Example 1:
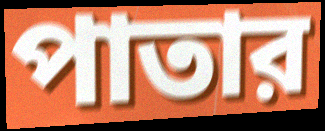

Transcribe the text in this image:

পাতার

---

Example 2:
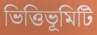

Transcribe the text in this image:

ভিত্তিভূমিটি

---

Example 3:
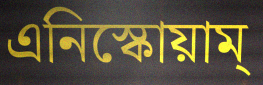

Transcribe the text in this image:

এনিস্কোয়াম্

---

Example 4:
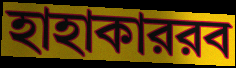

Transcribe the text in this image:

হাহাকাররব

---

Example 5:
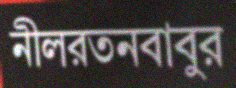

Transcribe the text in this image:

নীলরতনবাবুর